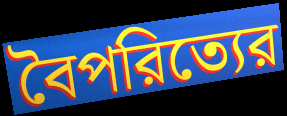
বৈপরিত্যের